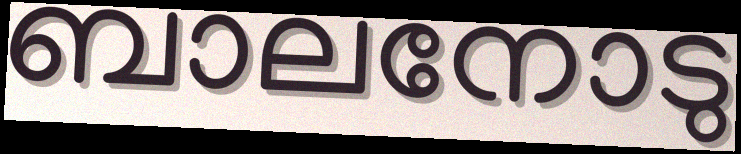
ബാലനോടു